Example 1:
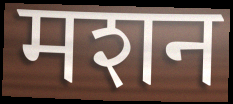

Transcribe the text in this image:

मशन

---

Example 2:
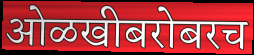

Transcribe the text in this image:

ओळखीबरोबरच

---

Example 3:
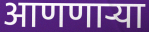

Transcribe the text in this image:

आणणाऱ्या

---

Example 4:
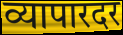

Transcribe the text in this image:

व्यापारदर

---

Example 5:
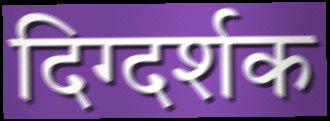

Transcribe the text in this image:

दिग्‍दर्शक